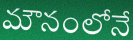
మౌనంలోనే